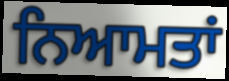
ਨਿਆਮਤਾਂ